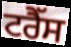
ਟਰੈੱਸ